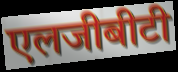
एलजीबीटी